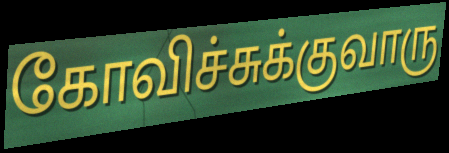
கோவிச்சுக்குவாரு